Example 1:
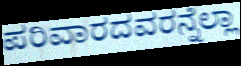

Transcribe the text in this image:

ಪರಿವಾರದವರನ್ನೆಲ್ಲಾ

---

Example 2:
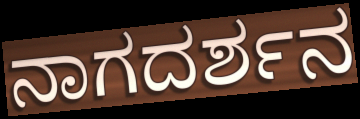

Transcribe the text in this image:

ನಾಗದರ್ಶನ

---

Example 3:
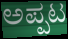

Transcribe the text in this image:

ಅಪ್ಪಟ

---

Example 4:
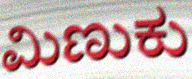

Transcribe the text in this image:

ಮಿಣುಕು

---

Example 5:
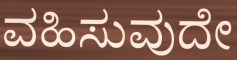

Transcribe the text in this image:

ವಹಿಸುವುದೇ